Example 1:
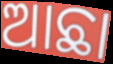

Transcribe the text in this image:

ଆଛା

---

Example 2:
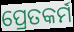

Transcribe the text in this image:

ପ୍ରେତକର୍ମ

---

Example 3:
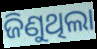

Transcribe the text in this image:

ଜିଣୁଥିଲା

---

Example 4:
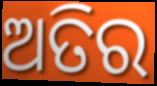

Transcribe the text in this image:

ଅତିର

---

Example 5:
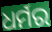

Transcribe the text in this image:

ଧର୍ମର